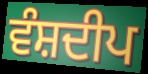
ਵੰਸ਼ਦੀਪ